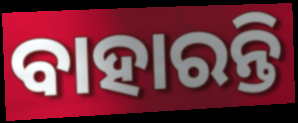
ବାହାରନ୍ତି